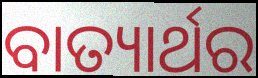
ବାତ୍ୟାର୍ଥର